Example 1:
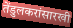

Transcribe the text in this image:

तेंडुलकरांसारखी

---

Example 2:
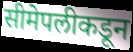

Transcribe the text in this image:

सीमेपलीकडून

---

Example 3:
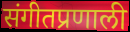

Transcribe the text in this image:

संगीतप्रणाली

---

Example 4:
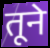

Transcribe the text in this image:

तूने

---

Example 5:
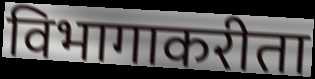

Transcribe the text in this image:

विभागाकरीता